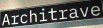
Architrave